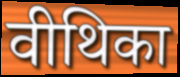
वीथिका